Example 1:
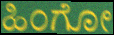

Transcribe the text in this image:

ಹಿಂಗೋ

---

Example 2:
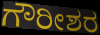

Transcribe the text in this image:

ಗೌರೀಶರ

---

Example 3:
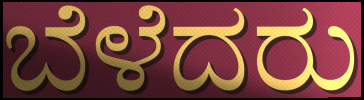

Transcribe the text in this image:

ಬೆಳೆದರು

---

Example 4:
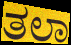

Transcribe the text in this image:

ತಲಾ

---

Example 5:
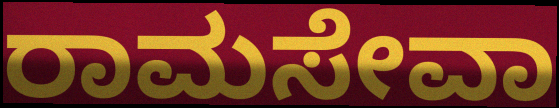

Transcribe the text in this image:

ರಾಮಸೇವಾ